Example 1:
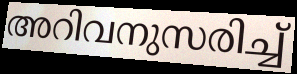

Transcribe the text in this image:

അറിവനുസരിച്ച്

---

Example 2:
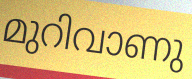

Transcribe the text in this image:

മുറിവാണു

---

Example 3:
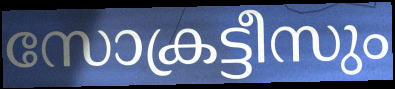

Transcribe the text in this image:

സോക്രട്ടീസും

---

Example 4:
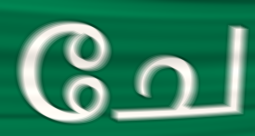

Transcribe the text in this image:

ചേ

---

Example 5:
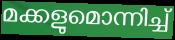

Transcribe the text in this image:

മക്കളുമൊന്നിച്ച്